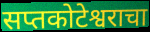
सप्तकोटेश्वराचा